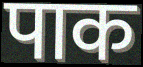
पाक